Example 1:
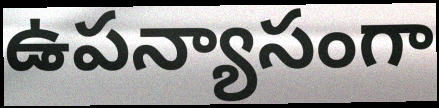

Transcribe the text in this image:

ఉపన్యాసంగా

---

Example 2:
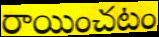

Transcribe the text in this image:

రాయించటం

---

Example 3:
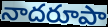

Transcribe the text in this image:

నాదరూపా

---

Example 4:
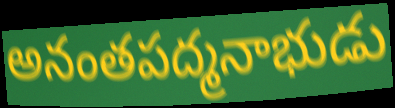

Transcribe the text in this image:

అనంతపద్మనాభుడు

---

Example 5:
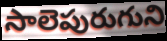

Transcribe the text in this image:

సాలెపురుగుని